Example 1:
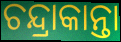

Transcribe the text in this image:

ଚନ୍ଦ୍ରାକାନ୍ତା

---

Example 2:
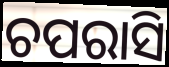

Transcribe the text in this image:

ଚପରାସି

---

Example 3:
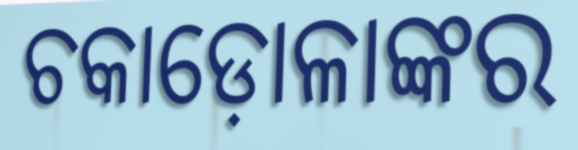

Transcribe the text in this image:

ଚକାଡ଼ୋଳାଙ୍କର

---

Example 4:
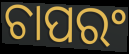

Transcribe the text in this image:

ଚାପରଂ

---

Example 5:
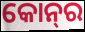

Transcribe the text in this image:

କୋନ୍‌ର